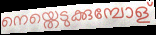
നെയ്തെടുക്കുമ്പോള്